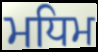
ਮਧਿਮ